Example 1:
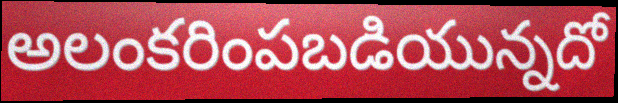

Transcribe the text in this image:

అలంకరింపబడియున్నదో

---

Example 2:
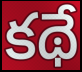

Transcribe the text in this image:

కథే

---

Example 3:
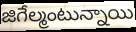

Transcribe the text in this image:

జిగేల్మంటున్నాయి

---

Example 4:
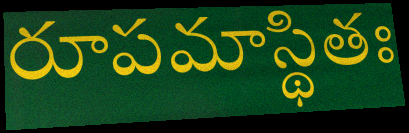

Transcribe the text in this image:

రూపమాస్థితః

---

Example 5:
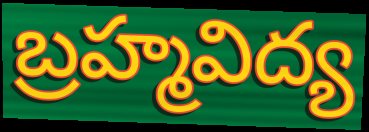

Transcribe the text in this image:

బ్రహ్మవిద్య